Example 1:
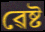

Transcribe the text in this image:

ৱেষ্ট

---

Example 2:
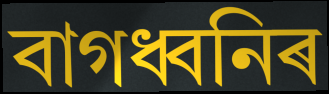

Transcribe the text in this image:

বাগধ্বনিৰ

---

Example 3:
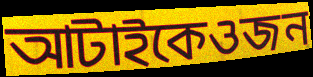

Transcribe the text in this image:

আটাইকেওজন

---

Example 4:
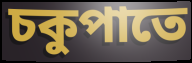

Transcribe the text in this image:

চকুপাতে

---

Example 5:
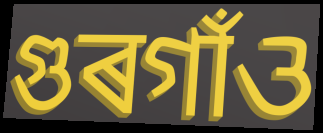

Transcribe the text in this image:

গুৰগাঁও